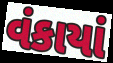
વંકાયાં